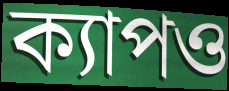
ক্যাপও